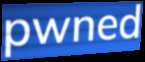
pwned